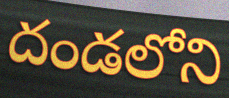
దండలోని